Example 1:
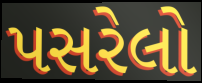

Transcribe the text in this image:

પસરેલો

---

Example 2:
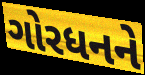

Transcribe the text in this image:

ગોરધનને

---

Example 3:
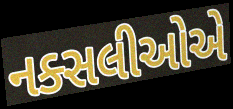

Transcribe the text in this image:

નક્સલીઓએ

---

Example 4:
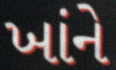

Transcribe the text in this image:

ખાંને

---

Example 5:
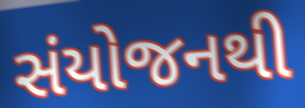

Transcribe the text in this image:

સંયોજનથી